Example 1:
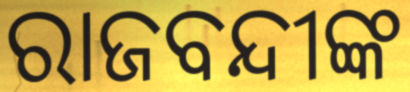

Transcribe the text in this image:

ରାଜବନ୍ଦୀଙ୍କ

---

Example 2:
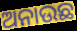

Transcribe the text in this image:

ଅନାଉଛ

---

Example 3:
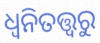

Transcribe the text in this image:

ଧ୍ୱନିତତ୍ତ୍ୱରୁ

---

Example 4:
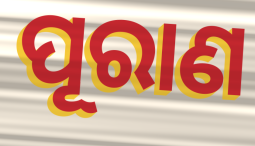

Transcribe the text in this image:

ପୂରାଣ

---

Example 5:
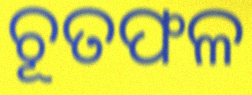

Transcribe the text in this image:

ଚୂତଫଳ